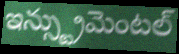
ఇన్స్ట్రుమెంటల్